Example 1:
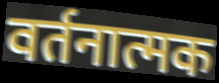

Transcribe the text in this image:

वर्तनात्मक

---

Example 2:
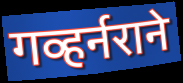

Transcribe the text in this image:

गव्हर्नराने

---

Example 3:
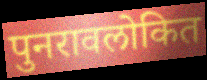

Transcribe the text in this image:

पुनरावलोकित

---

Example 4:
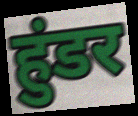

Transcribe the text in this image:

हुंडर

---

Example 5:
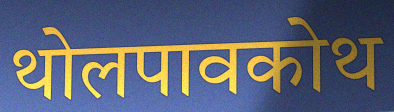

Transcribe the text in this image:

थोलपावकोथ